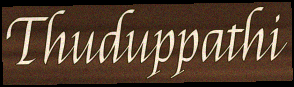
Thuduppathi